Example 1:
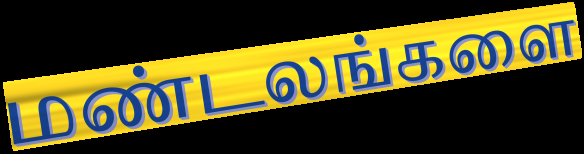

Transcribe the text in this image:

மண்டலங்களை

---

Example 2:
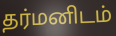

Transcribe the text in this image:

தர்மனிடம்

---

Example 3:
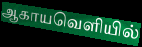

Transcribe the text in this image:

ஆகாயவெளியில்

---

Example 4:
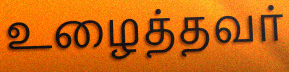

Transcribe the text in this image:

உழைத்தவர்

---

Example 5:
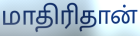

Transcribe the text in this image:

மாதிரிதான்